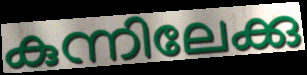
കുന്നിലേക്കു